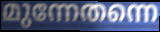
മുന്നേതന്നെ